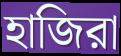
হাজিরা